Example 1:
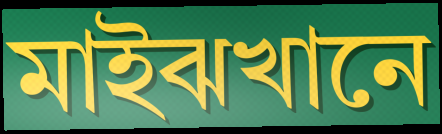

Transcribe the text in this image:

মাইঝখানে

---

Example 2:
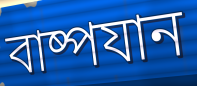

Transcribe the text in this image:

বাষ্পযান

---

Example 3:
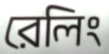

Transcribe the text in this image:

রেলিং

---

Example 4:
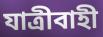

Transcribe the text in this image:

যাত্রীবাহী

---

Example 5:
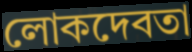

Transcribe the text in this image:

লোকদেবতা